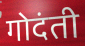
गोदंती